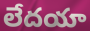
లేదయా